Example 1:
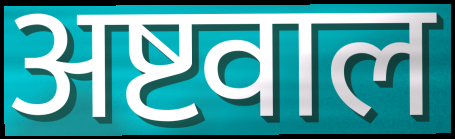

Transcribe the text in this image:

अष्टवाल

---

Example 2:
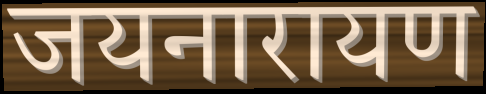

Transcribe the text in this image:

जयनारायण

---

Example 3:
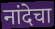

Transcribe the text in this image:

नांदेचा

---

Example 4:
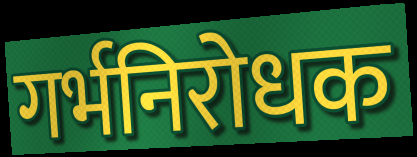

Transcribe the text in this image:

गर्भनिरोधक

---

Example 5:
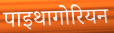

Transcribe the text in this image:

पाइथागोरियन